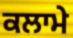
ਕਲਾਮੇ